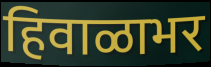
हिवाळाभर